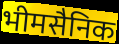
भीमसैनिक